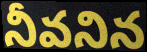
నీవనిన